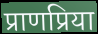
प्राणप्रिया